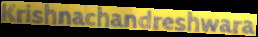
Krishnachandreshwara